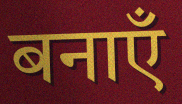
बनाएँ